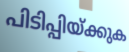
പിടിപ്പിയ്ക്കുക